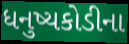
ધનુષ્યકોડીના